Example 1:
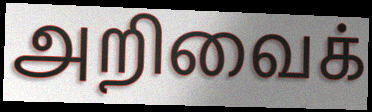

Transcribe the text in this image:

அறிவைக்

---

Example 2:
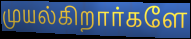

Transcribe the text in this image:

முயல்கிறார்களே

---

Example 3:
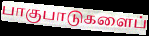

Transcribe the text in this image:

பாகுபாடுகளைப்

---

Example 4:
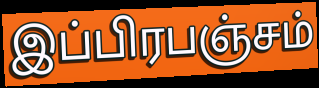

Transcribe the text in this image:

இப்பிரபஞ்சம்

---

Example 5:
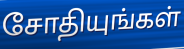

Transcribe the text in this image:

சோதியுங்கள்